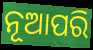
ନୂଆପରି